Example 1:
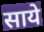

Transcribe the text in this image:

साये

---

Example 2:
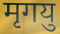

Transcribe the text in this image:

मृगयु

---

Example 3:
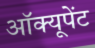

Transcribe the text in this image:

ऑक्यूपेंट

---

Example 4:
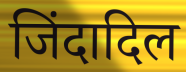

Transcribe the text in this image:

जिंदादिल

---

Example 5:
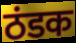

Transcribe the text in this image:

ठंडक